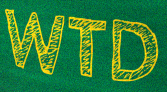
WTD